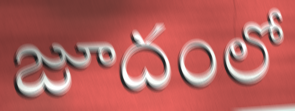
జూదంలో